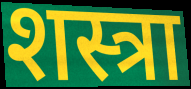
शस्त्रा